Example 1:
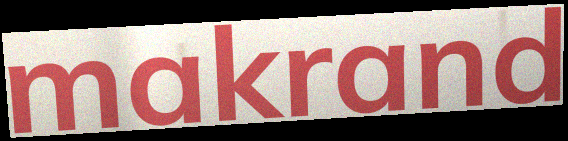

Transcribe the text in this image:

makrand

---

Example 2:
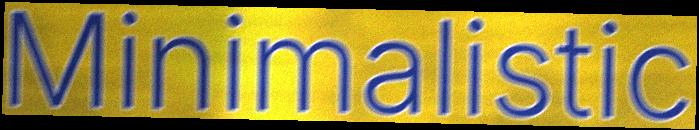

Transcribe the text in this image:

Minimalistic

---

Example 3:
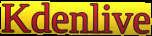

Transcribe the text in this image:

Kdenlive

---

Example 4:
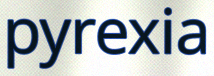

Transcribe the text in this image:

pyrexia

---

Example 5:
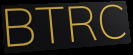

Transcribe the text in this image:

BTRC